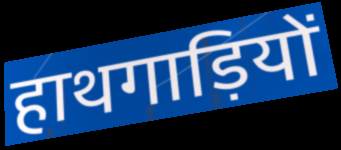
हाथगाड़ियों